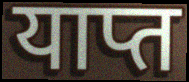
याप्त